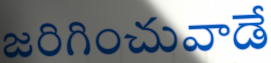
జరిగించువాడే